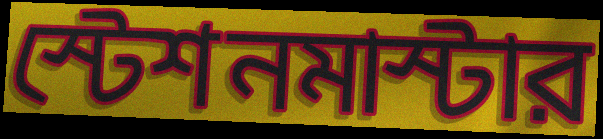
স্টেশনমাস্টার